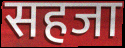
सहजा